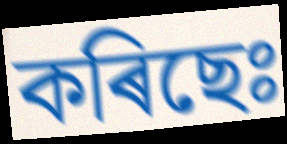
কৰিছেঃ